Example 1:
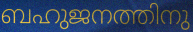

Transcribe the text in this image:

ബഹുജനത്തിനു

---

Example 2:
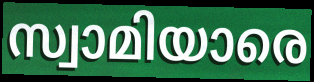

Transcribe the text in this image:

സ്വാമിയാരെ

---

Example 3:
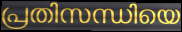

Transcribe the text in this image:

പ്രതിസന്ധിയെ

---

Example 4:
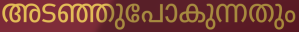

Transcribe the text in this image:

അടഞ്ഞുപോകുന്നതും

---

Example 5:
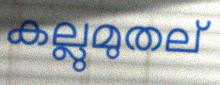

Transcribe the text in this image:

കല്ലുമുതല്